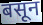
बसून